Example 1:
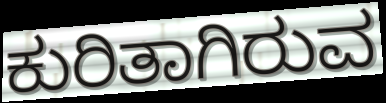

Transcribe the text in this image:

ಕುರಿತಾಗಿರುವ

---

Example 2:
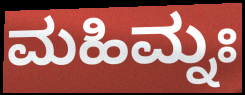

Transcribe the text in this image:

ಮಹಿಮ್ನಃ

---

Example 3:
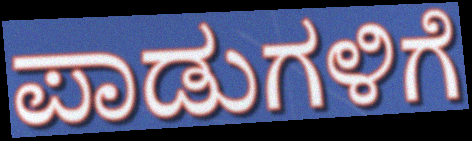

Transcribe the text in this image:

ಪಾಡುಗಳಿಗೆ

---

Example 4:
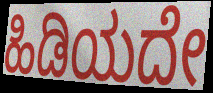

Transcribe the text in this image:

ಹಿಡಿಯದೇ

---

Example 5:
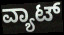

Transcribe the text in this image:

ವ್ಯಾಟ್